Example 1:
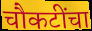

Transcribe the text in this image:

चौकटींचा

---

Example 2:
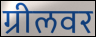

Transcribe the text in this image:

ग्रीलवर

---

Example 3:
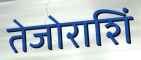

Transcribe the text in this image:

तेजोराशिं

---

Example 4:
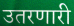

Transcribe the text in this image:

उतरणारी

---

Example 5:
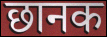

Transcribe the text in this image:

छानक